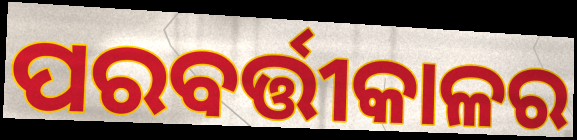
ପରବର୍ତ୍ତୀକାଳର